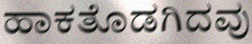
ಹಾಕತೊಡಗಿದವು